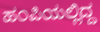
ಹಂಪಿಯಲ್ಲಿದ್ದ